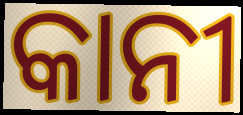
କାନୀ